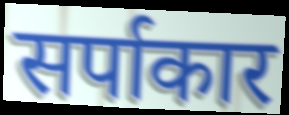
सर्पाकार